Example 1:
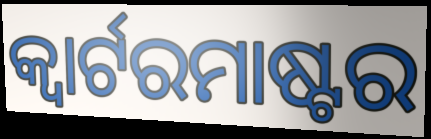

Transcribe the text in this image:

କ୍ୱାର୍ଟରମାଷ୍ଟର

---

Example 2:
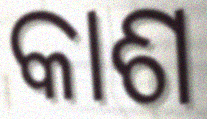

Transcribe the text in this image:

କାଶ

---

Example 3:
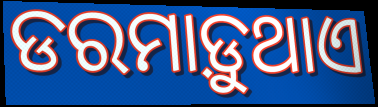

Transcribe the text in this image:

ଡରମାଡ଼ୁଥାଏ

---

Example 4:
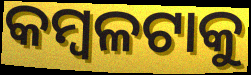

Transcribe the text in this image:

କମ୍ବଳଟାକୁ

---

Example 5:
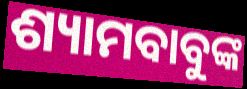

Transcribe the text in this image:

ଶ୍ୟାମବାବୁଙ୍କ